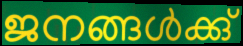
ജനങ്ങൾക്കു്